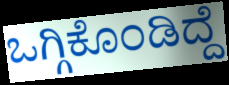
ಒಗ್ಗಿಕೊಂಡಿದ್ದೆ